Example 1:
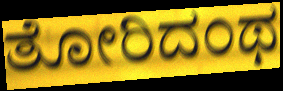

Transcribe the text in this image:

ತೋರಿದಂಥ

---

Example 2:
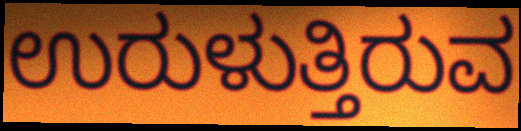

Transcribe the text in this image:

ಉರುಳುತ್ತಿರುವ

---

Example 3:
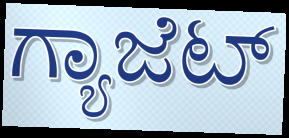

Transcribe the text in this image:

ಗ್ಯಾಜೆಟ್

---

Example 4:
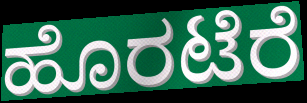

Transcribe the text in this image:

ಹೊರಟೆರೆ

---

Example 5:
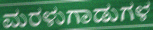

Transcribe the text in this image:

ಮರಳುಗಾಡುಗಳ